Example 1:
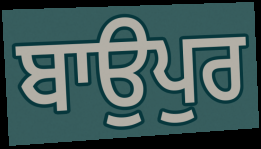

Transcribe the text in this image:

ਬਾਉਪੁਰ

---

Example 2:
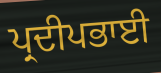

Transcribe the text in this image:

ਪ੍ਰਦੀਪਭਾਈ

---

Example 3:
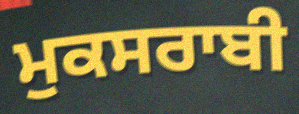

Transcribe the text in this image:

ਮੁਕਸਰਾਬੀ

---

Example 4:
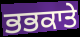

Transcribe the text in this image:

ਭਭਕਾਤੇ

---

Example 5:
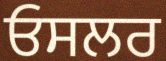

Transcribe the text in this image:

ਓਸਲਰ